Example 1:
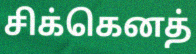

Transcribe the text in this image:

சிக்கெனத்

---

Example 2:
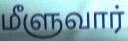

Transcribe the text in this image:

மீளுவார்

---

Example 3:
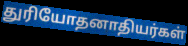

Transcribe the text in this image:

துரியோதனாதியர்கள்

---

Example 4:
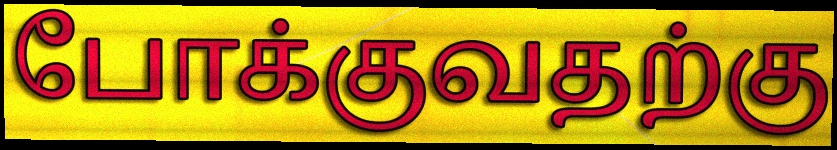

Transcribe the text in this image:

போக்குவதற்கு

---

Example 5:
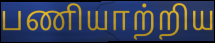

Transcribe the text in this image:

பணியாற்றிய